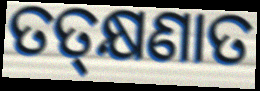
ତତ୍କ୍ଷଣାତ